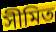
সীমিত